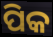
ପିକ